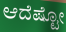
ಆದೆಷ್ಟೋ